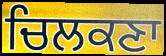
ਚਿਲਕਣਾ